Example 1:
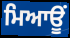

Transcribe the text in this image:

ਮਿਆਊਂ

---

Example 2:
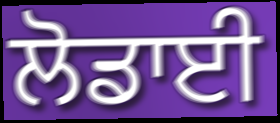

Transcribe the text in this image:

ਲੋਡਾਈ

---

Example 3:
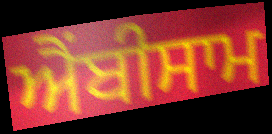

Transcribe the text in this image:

ਐਂਬੀਸਾਮ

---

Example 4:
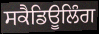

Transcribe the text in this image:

ਸਕੈਡਿਊਲਿੰਗ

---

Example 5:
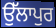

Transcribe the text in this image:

ਉੱਲਾਪੁਰ